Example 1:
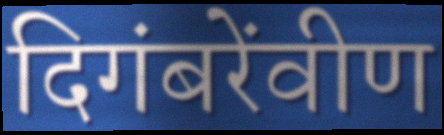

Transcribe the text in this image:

दिगंबरेंवीण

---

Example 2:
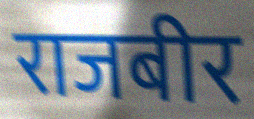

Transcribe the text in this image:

राजबीर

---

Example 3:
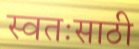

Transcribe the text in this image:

स्वतःसाठी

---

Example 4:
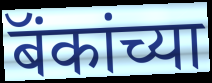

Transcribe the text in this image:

बॅंकांच्या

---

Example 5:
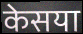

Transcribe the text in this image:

केसया